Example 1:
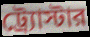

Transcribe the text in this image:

ট্র্যোস্টার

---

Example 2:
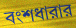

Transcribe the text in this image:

বংশধারার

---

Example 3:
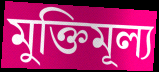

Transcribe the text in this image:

মুক্তিমূল্য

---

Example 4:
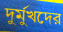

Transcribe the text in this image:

দুর্মুখদের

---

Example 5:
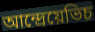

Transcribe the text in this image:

আন্দ্রেয়েভিচ